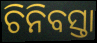
ଚିନିବସ୍ତା